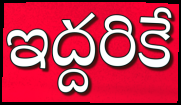
ఇద్దరికే